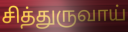
சித்துருவாய்